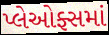
પ્લેઓફ્સમાં